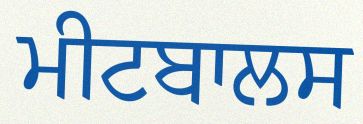
ਮੀਟਬਾਲਸ